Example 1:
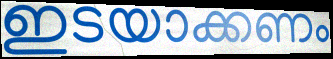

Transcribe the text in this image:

ഇടയാക്കണം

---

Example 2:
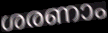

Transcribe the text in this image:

ശരണാം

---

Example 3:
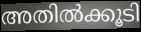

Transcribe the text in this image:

അതിൽക്കൂടി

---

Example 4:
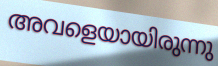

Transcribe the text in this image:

അവളെയായിരുന്നു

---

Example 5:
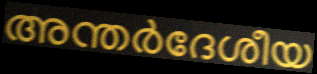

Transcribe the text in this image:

അന്തർദേശീയ